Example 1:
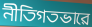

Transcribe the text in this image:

নীতিগতভাৱে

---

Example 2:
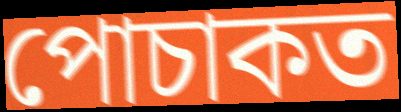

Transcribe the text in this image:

পোচাকত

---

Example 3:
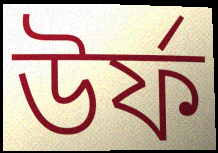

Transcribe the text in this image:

উৰ্ফ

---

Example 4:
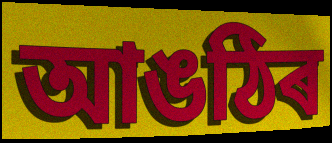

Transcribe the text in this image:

আঙঠিৰ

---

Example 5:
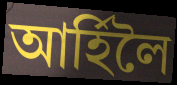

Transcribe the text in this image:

আৰ্হিলৈ